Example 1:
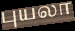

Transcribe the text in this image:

புயலா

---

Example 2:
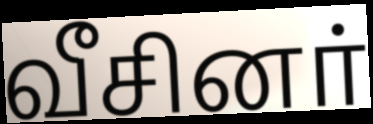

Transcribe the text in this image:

வீசினர்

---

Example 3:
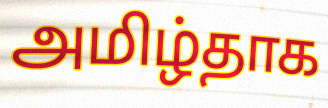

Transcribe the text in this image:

அமிழ்தாக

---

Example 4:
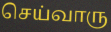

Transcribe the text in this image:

செய்வாரு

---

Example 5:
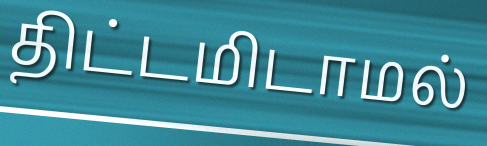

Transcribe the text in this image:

திட்டமிடாமல்